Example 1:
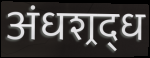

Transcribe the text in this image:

अंधश्रद्ध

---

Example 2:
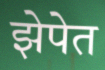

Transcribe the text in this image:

झेपेत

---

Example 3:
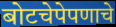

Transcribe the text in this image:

बोटचेपेपणाचे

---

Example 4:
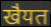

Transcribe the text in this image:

खैयत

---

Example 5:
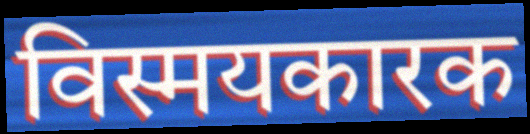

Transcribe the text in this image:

विस्मयकारक